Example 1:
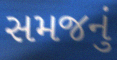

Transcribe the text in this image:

સમજનું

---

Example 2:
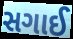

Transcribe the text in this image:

સગાઈ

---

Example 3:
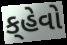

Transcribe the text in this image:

ક્‌હેવો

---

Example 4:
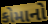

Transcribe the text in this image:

કોમાનો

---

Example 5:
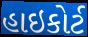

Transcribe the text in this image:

હાઇકોર્ટ